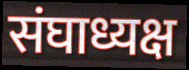
संघाध्यक्ष